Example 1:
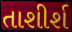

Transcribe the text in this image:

તાશીર્શ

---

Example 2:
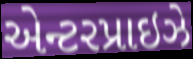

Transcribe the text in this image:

એન્ટરપ્રાઇઝે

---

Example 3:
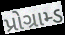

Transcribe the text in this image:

પ્રોગ્રામ્ડ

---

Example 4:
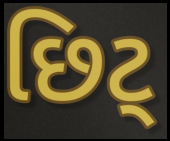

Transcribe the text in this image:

છિટ્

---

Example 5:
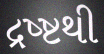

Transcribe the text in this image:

દ્રષ્ષ્ટથી